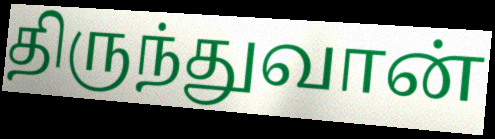
திருந்துவான்